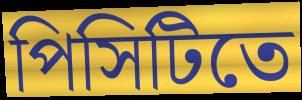
পিসিটিতে